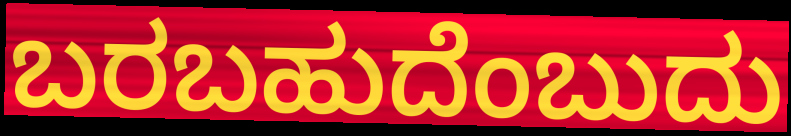
ಬರಬಹುದೆಂಬುದು